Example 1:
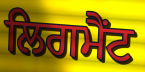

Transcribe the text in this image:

ਲਿਗਮੈਂਟ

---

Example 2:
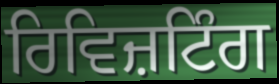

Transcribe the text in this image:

ਰਿਵਿਜ਼ਟਿੰਗ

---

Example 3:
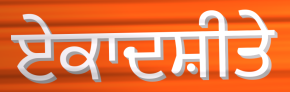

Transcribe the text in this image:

ਏਕਾਦਸ਼ੀਤੇ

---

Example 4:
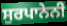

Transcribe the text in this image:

ਸੁਰਪਾਨੇਨੀ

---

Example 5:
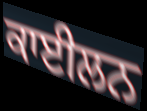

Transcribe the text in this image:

ਕਾਈਲਨ